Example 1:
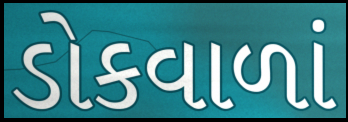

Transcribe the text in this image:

ડોકવાળાં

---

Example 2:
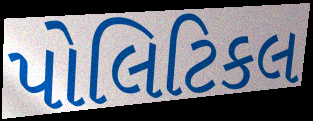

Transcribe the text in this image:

પોલિટિકલ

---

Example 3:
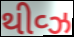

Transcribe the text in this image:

થીવ્ઝ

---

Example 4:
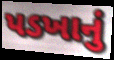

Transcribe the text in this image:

પડખાનું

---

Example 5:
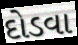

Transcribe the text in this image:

દોડવા